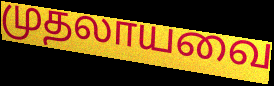
முதலாயவை